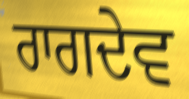
ਰਾਗਦੇਵ